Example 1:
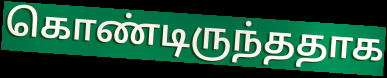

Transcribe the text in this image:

கொண்டிருந்ததாக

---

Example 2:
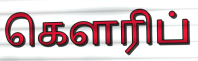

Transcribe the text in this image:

கௌரிப்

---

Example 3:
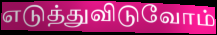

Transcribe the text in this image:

எடுத்துவிடுவோம்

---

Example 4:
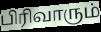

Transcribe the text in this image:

பிரிவாரும்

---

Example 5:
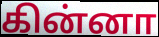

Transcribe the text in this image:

கின்னா